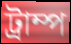
ট্রাম্প